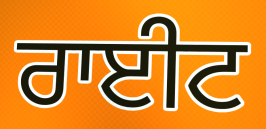
ਰਾਈਟ